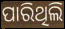
ପାରିଥିଲି